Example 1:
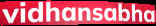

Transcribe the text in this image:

vidhansabha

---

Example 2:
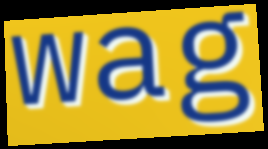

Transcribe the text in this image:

wag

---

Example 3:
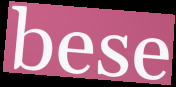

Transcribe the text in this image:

bese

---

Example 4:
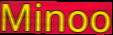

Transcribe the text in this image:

Minoo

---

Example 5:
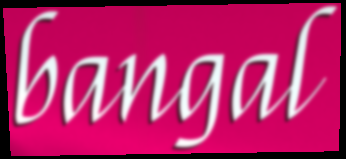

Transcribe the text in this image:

bangal